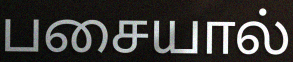
பசையால்